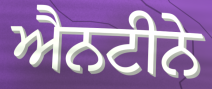
ਐਨਟੀਨੇ